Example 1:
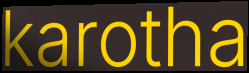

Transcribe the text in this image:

karotha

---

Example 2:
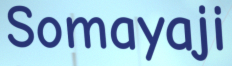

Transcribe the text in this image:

Somayaji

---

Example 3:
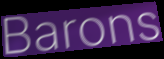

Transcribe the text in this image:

Barons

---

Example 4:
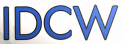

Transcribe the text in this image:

IDCW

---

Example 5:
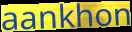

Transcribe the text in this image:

aankhon